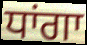
ਧਾਂਗਾ